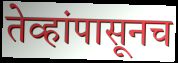
तेव्हांपासूनच